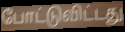
போட்டுவிட்டது